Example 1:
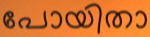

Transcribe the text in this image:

പോയിതാ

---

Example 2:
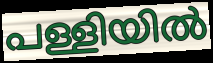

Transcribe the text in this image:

പള്ളിയിൽ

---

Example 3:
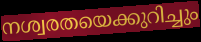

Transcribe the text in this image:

നശ്വരതയെക്കുറിച്ചും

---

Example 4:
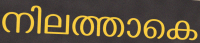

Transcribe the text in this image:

നിലത്താകെ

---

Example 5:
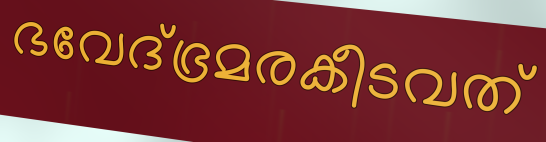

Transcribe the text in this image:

ഭവേദ്ഭ്രമരകീടവത്